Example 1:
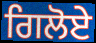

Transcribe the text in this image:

ਗਿਲੋਏ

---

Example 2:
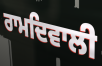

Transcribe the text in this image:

ਰਾਮਦਿਵਾਲੀ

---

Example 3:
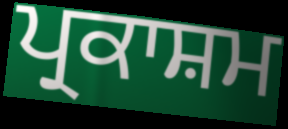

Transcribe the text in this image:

ਪ੍ਰਕਾਸ਼ਮ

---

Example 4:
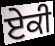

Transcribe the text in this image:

ਏਕੀ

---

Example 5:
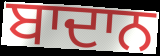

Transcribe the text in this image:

ਬਾਦਾਨ